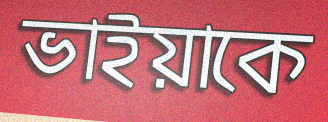
ভাইয়াকে